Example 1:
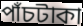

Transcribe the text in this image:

পাঁচটাকা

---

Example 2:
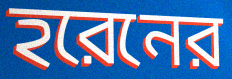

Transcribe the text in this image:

হরেনের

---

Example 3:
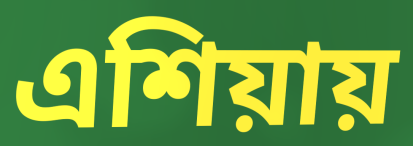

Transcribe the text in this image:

এশিয়ায়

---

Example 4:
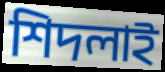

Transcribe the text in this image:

শিদলাই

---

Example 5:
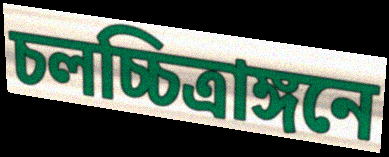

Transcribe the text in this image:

চলচ্চিত্রাঙ্গনে